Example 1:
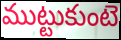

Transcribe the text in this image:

ముట్టుకుంటె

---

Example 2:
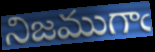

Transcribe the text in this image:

నిజముగాఁ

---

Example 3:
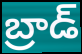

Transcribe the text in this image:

బ్రాడ్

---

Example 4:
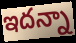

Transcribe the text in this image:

ఇదన్నా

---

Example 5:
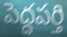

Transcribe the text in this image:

పెద్దపర్తి